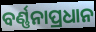
ବର୍ଣ୍ଣନାପ୍ରଧାନ